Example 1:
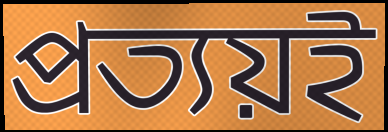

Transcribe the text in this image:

প্রত্যয়ই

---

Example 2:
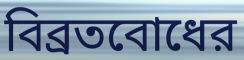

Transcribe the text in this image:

বিব্রতবোধের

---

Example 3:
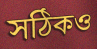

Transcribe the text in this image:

সঠিকও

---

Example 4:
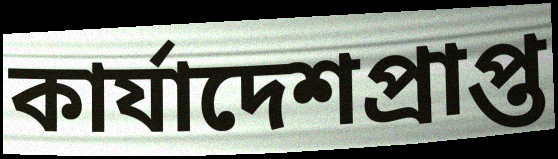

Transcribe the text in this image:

কার্যাদেশপ্রাপ্ত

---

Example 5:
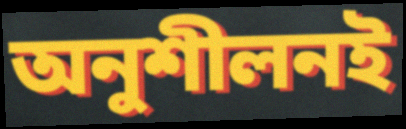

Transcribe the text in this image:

অনুশীলনই